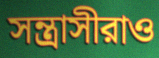
সন্ত্রাসীরাও